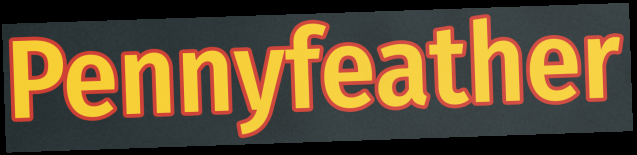
Pennyfeather